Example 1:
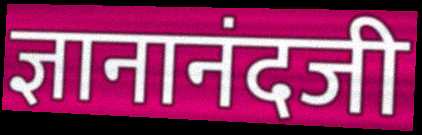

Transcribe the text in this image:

ज्ञानानंदजी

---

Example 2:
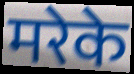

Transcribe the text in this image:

मरेके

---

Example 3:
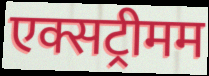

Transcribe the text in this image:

एक्सट्रीमम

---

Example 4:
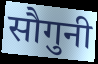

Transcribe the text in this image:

सौगुनी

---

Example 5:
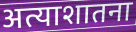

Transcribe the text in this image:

अत्याशातना